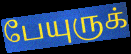
பேயுருக்